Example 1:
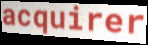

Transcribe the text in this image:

acquirer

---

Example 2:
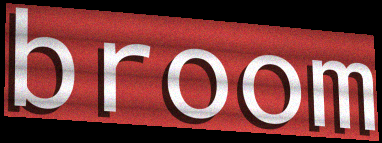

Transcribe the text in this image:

broom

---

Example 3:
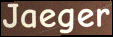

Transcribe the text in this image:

Jaeger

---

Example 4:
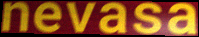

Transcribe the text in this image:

nevasa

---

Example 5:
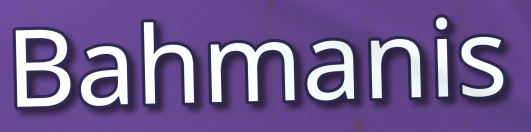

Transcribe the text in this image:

Bahmanis